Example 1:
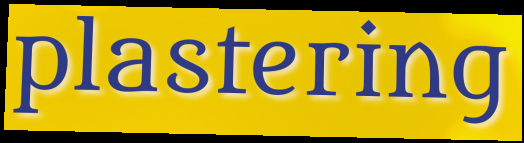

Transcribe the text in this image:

plastering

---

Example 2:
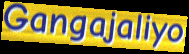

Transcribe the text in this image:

Gangajaliyo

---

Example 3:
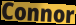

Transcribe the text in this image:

Connor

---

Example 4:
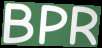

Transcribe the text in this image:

BPR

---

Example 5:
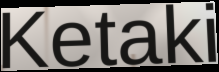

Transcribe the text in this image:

Ketaki